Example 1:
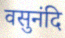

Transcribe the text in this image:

वसुनंदि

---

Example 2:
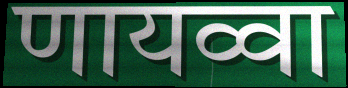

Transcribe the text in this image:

णायव्वा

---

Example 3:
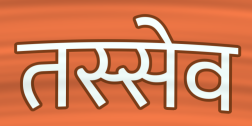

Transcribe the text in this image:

तस्सेव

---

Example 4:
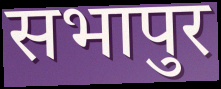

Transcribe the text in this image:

सभापुर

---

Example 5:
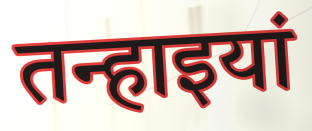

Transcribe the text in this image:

तन्हाइयां